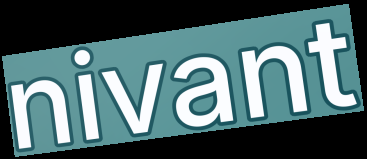
nivant